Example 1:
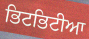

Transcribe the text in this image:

ਭਿਟਭਿਟੀਆ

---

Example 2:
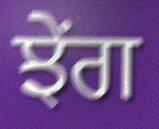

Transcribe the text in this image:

ਝੇਂਗ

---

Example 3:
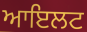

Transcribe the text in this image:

ਆਇਲਟ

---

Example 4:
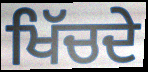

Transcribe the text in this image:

ਖਿੱਚਦੇ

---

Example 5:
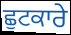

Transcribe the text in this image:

ਛੁਟਕਾਰੇ